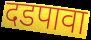
दडपावा